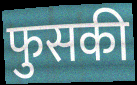
फुसकी